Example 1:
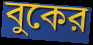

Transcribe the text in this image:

বুকের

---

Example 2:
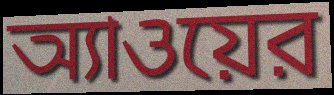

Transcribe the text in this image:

অ্যাওয়ের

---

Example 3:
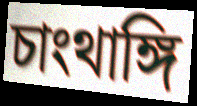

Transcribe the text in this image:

চাংথাঙ্গি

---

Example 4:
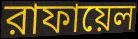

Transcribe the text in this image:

রাফায়েল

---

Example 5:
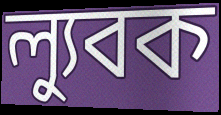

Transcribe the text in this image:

ল্যুবক